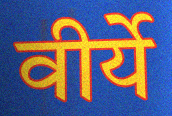
वीर्ये